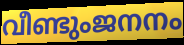
വീണ്ടുംജനനം